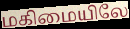
மகிமையிலே